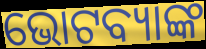
ଭୋଟବ୍ୟାଙ୍କ